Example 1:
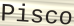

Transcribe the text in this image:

Pisco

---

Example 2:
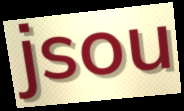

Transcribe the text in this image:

jsou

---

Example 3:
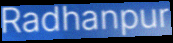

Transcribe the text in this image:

Radhanpur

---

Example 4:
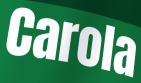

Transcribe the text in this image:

Carola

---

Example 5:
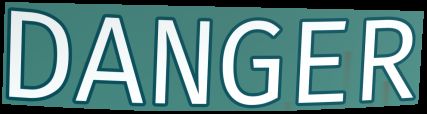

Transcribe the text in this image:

DANGER